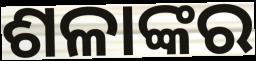
ଶଳାଙ୍କର